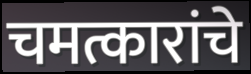
चमत्कारांचे